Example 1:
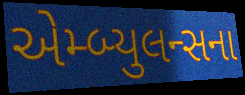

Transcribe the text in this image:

એમ્બ્યુલન્સના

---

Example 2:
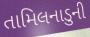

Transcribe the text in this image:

તામિલનાડુની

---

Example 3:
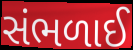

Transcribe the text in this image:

સંભળાઈ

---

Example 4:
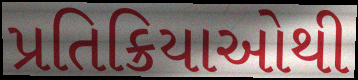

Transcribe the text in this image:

પ્રતિક્રિયાઓથી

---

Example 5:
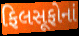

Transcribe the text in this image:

ફિલસૂફોનાં